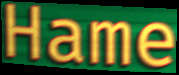
Hame